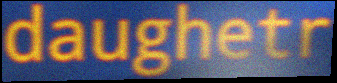
daughetr